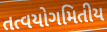
તત્વયોગમિતીય